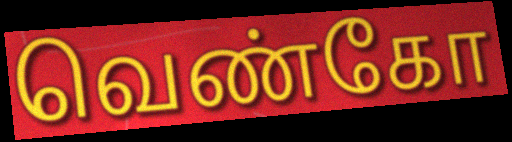
வெண்கோ